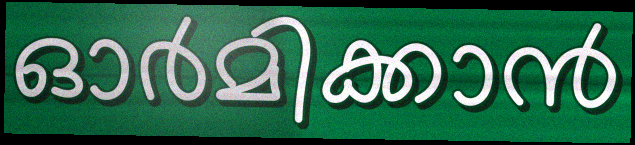
ഓർമിക്കാൻ